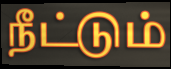
நீட்டும்